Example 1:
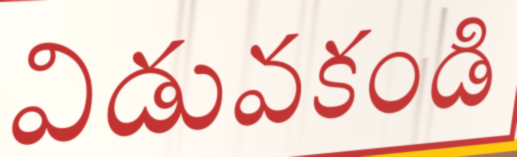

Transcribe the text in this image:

విడువకండి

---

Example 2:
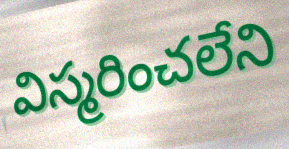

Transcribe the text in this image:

విస్మరించలేని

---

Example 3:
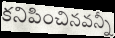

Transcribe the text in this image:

కనిపించినవన్నీ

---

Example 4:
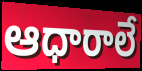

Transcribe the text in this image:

ఆధారాలే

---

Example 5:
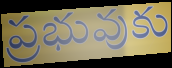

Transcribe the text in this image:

ప్రభువుకు